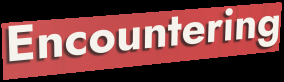
Encountering